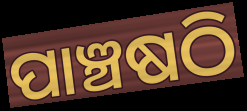
ପାଞ୍ଚଷଠି